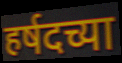
हर्षदच्या